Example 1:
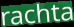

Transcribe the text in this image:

rachta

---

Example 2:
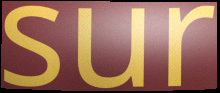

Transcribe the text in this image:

sur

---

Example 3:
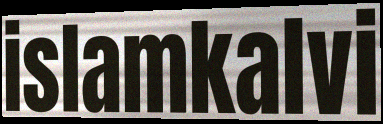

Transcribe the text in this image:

islamkalvi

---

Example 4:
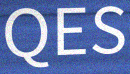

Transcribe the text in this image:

QES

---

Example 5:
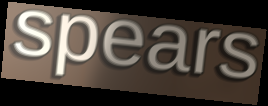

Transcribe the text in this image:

spears